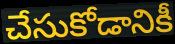
చేసుకోడానికీ